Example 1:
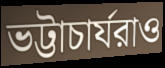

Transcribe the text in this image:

ভট্টাচার্যরাও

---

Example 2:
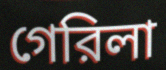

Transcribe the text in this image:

গেরিলা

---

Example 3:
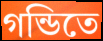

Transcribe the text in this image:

গন্ডিতে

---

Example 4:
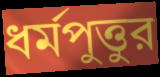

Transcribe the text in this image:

ধর্মপুত্তুর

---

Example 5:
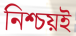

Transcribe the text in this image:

নিশ্চয়ই